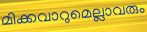
മിക്കവാറുമെല്ലാവരും